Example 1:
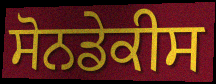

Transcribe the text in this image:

ਸੋਨਡੇਕੀਸ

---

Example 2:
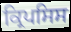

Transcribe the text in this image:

ਕ੍ਰਿਪਸਿਸ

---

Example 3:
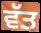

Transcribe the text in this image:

ਵੱਤ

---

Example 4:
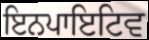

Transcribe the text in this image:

ਇਨਪਾਇਟਿਵ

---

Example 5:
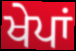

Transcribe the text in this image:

ਖੇਪਾਂ